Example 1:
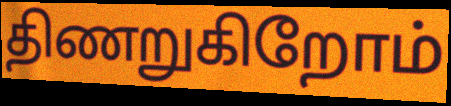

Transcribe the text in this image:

திணறுகிறோம்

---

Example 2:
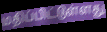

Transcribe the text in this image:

மதிப்பிட்டுள்ளது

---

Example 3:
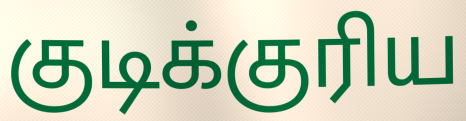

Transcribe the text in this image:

குடிக்குரிய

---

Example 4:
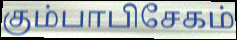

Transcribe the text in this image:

கும்பாபிசேகம்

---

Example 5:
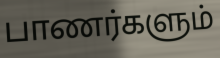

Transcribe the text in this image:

பாணர்களும்